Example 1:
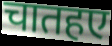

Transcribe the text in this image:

चातहए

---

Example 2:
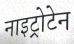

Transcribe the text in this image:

नाइट्रोटेन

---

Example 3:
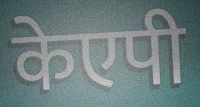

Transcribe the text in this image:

केएपी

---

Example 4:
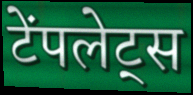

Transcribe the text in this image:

टेंपलेट्स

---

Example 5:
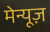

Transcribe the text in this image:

मेन्यूज़